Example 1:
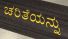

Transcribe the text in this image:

ಚರಿತೆಯನ್ನು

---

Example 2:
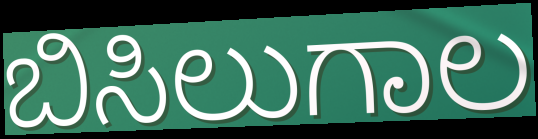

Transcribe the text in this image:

ಬಿಸಿಲುಗಾಲ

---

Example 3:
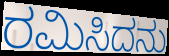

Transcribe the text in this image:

ರಮಿಸಿದನು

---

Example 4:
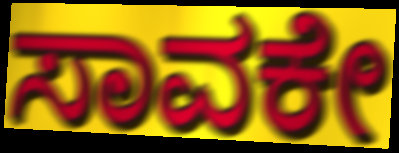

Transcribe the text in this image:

ಸಾವಕೇ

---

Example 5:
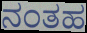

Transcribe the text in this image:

ನಂತಹ